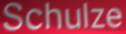
Schulze